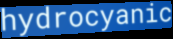
hydrocyanic